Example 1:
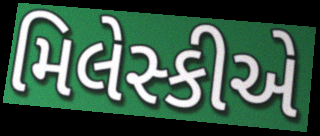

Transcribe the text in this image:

મિલેસ્કીએ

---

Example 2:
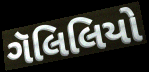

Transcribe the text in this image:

ગૅલિલિયો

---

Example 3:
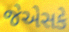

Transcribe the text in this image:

જેએસકે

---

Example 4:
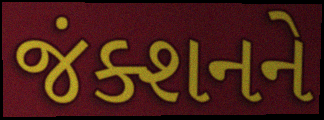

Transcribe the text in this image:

જંક્શનને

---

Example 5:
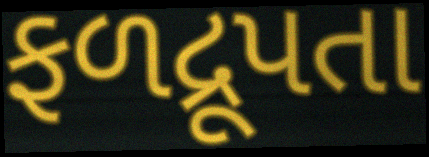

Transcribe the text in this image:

ફળદ્રૂપતા